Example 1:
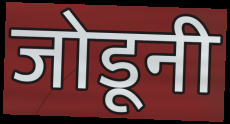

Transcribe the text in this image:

जोडूनी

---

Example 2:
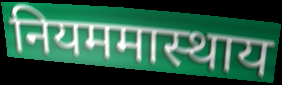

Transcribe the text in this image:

नियममास्थाय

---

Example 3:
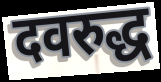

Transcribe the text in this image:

दवरुद्ध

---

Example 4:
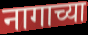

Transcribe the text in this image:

नागाच्या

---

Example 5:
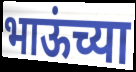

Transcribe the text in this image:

भाऊंच्या